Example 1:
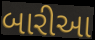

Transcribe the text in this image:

બારીઆ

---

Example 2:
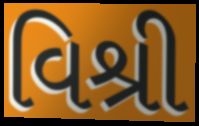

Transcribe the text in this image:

વિશ્રી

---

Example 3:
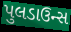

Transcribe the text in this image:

પુલડાઉન્સ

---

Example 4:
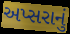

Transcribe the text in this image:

અપ્સરાનું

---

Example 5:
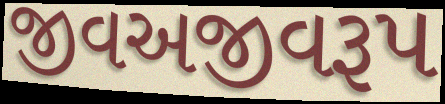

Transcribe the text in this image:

જીવઅજીવરૂપ